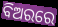
ବିଅରରେ